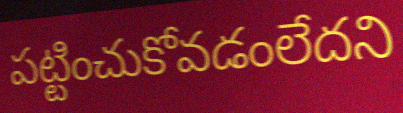
పట్టించుకోవడంలేదని